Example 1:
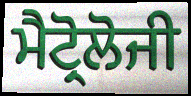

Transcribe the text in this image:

ਮੈਟ੍ਰੋਲੋਜੀ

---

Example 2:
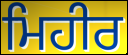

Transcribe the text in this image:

ਮਿਹੀਰ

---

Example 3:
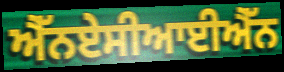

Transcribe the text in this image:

ਐੱਨਏਸੀਆਈਐੱਨ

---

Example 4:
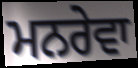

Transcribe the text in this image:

ਮਨਰੇਵਾ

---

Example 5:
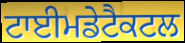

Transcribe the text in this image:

ਟਾਈਮਡੇਟੈਕਟਲ